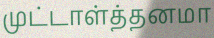
முட்டாள்த்தனமா